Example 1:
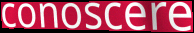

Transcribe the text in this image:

conoscere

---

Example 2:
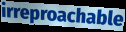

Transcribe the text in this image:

irreproachable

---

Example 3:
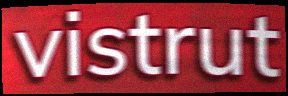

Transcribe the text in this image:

vistrut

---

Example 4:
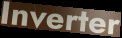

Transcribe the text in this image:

Inverter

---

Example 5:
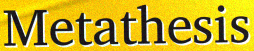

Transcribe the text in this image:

Metathesis